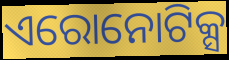
ଏରୋନୋଟିକ୍ସ